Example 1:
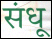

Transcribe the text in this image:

संधू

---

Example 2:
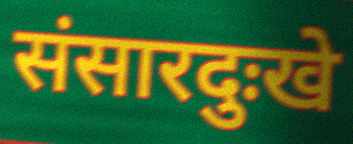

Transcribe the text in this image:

संसारदुःखे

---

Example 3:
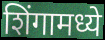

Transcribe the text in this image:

शिंगामध्ये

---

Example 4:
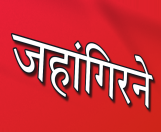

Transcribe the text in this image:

जहांगिरने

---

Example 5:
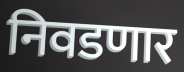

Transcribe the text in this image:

निवडणार